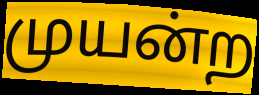
முயன்ற